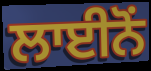
ਲਾਈਨੋਂ